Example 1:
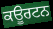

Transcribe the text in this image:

ਕਊਰਟਨ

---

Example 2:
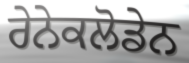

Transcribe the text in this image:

ਰੇਨੇਕਲੋਡੇਨ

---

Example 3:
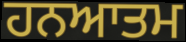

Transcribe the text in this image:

ਹਨਆਤਮ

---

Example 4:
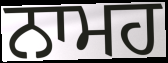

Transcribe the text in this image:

ਨਾਮਹ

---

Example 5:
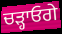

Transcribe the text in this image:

ਚੜ੍ਹਾਓਗੇ